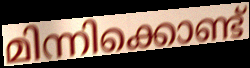
മിന്നിക്കൊണ്ട്